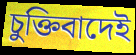
চুক্তিবাদেই